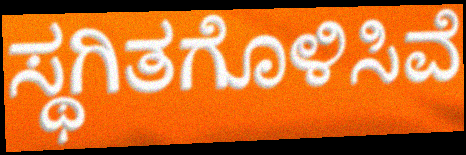
ಸ್ಥಗಿತಗೊಳಿಸಿವೆ